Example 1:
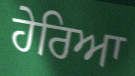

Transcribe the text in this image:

ਹੇਰਿਆ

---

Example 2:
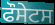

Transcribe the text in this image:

ਫੌਸੇਟਸ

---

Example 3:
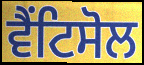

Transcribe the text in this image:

ਵੈਂਟਿਸੋਲ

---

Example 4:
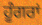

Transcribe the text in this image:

ਹੂੰਗਰਾਂ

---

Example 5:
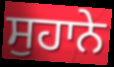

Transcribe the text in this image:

ਸੁਹਾਨੇ